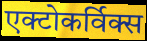
एक्टोकर्विक्स